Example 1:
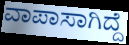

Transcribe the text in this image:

ವಾಪಾಸಾಗಿದ್ದೆ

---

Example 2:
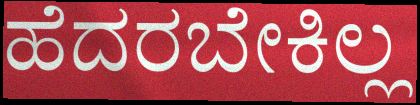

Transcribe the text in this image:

ಹೆದರಬೇಕಿಲ್ಲ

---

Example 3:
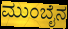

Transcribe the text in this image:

ಮುಂಬೈನ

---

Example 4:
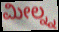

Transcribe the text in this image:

ಮೀಲ್ನ್ನ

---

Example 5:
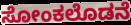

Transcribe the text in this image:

ಸೋಂಕಲೊಡನೆ